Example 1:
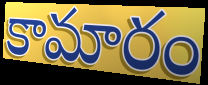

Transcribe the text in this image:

కామారం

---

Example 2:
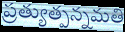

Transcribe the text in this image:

ప్రత్యుత్పన్నమతి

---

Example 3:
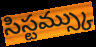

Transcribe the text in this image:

సిస్టమ్స్కు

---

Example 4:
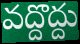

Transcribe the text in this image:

వద్దొద్దు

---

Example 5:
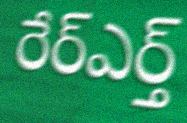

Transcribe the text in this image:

రేర్ఎర్త్